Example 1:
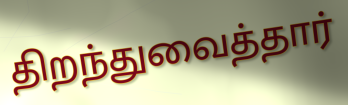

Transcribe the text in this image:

திறந்துவைத்தார்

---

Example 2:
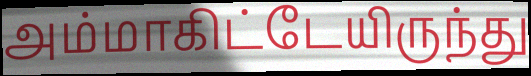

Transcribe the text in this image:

அம்மாகிட்டேயிருந்து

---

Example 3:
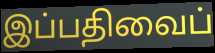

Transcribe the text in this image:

இப்பதிவைப்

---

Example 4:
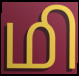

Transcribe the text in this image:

மி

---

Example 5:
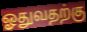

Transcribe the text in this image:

ஓதுவதற்கு